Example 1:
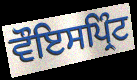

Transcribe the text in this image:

ਵੌਇਸਪ੍ਰਿੰਟ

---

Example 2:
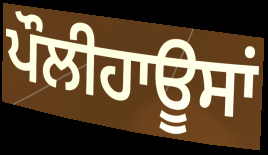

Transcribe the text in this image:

ਪੌਲੀਹਾਊਸਾਂ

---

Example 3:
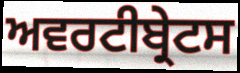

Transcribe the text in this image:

ਅਵਰਟੀਬ੍ਰੇਟਸ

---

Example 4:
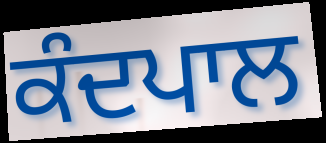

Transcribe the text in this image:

ਕੰਦਪਾਲ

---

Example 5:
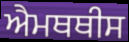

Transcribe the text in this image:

ਐਮਥਥੀਸ